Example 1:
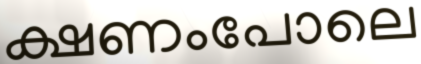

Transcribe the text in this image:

ക്ഷണംപോലെ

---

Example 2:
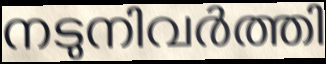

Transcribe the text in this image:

നടുനിവർത്തി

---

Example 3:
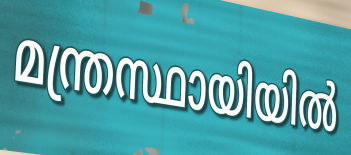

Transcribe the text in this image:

മന്ത്രസ്ഥായിയിൽ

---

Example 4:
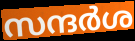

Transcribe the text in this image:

സന്ദർശ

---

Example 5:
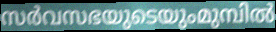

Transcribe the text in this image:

സർവസഭയുടെയുംമുമ്പിൽ